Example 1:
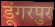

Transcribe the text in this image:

डूंगरपुर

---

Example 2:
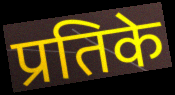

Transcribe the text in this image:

प्रतिके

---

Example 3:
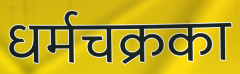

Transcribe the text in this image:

धर्मचक्रका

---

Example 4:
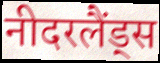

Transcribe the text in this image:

नीदरलैंड्स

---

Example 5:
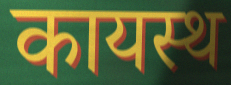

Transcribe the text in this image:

कायस्थ